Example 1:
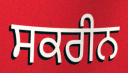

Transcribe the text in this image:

ਸਕਰੀਨ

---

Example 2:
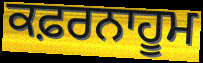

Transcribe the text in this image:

ਕਫ਼ਰਨਾਹੂਮ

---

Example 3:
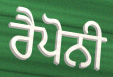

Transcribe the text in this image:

ਰੈਪੋਨੀ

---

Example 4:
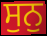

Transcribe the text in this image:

ਸੁਨੁ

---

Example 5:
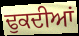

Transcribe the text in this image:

ਢੁਕਦੀਆਂ